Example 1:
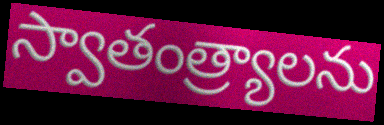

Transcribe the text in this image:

స్వాతంత్ర్యాలను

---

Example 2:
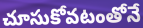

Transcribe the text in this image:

చూసుకోవటంతోనే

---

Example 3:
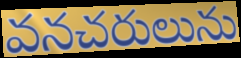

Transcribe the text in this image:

వనచరులును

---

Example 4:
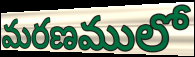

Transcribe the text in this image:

మరణములో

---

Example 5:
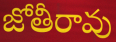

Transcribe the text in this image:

జోతీరావు